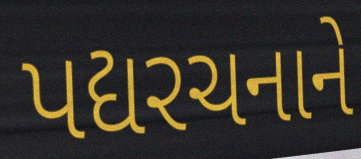
પદ્યરચનાને